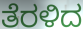
ತೆರಳಿದ